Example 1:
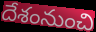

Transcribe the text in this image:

దేశంనుంచి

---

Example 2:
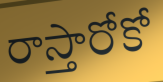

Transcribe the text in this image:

రాస్తారోకో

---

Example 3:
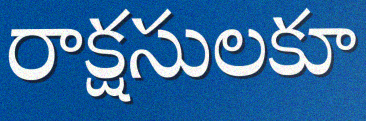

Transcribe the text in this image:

రాక్షసులకూ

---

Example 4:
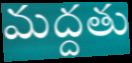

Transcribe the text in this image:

మద్దతు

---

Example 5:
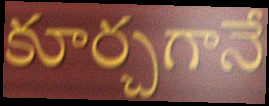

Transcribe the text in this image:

కూర్చగానే